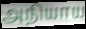
அநியாய